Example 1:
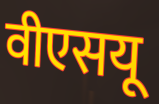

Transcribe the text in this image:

वीएसयू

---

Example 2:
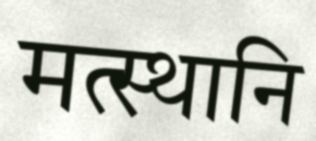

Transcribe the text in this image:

मत्स्थानि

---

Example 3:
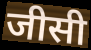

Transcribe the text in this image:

जीसी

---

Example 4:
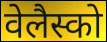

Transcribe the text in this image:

वेलैस्को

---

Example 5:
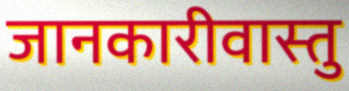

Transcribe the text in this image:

जानकारीवास्तु